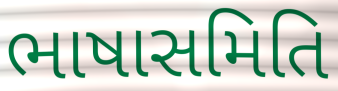
ભાષાસમિતિ